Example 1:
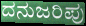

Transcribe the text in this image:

ದನುಜರಿಪು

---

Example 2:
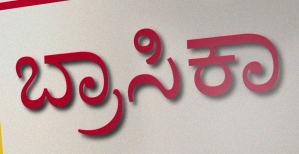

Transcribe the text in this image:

ಬ್ರಾಸಿಕಾ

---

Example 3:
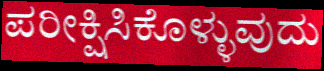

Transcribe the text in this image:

ಪರೀಕ್ಷಿಸಿಕೊಳ್ಳುವುದು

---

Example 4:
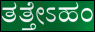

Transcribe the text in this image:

ತತ್ತೇಽಹಂ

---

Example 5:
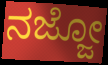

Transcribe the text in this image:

ನಜ್ಜೋ